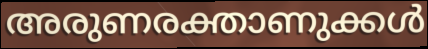
അരുണരക്താണുക്കൾ